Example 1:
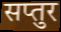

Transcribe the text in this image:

सप्तुर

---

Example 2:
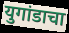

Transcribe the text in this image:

युगांडाचा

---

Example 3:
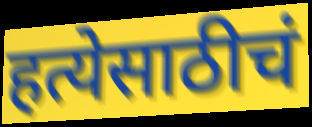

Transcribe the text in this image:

हत्येसाठीचं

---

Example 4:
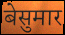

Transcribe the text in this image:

बेसुमार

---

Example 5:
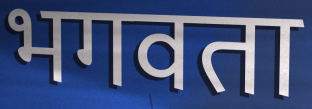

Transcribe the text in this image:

भगवता